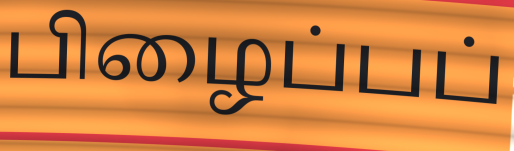
பிழைப்பப்